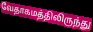
வேதாகமத்திலிருந்து